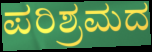
ಪರಿಶ್ರಮದ